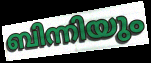
ബിന്നിയും